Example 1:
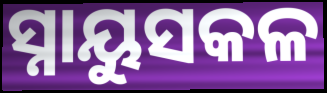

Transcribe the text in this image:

ସ୍ନାୟୁସକଳ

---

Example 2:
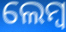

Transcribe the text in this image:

ଲେମ୍ବ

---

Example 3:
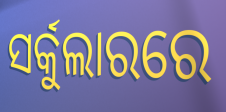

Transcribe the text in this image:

ସର୍କୁଲାରରେ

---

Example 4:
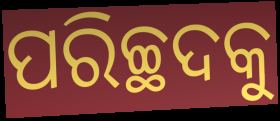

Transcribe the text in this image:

ପରିଚ୍ଛଦକୁ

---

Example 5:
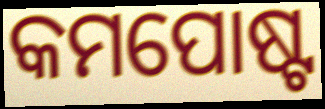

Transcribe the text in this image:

କମପୋଷ୍ଟ